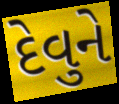
દેવુને